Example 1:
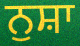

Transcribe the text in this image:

ਨੁਸ਼ਾ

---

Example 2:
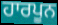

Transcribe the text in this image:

ਹਾਰਪੂਨ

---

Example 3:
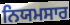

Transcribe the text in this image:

ਨਿਯਮਸਾਰ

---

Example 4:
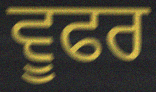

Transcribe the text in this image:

ਵੂਫਰ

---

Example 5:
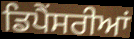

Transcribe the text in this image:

ਡਿਪੈਂਸਰੀਆਂ